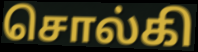
சொல்கி